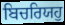
ਬਿਚਰਿਯਹੁ